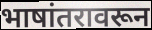
भाषांतरावरून